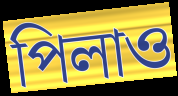
পিলাও